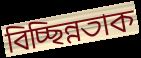
বিচ্ছিন্নতাক